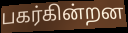
பகர்கின்றன